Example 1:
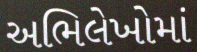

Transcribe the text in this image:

અભિલેખોમાં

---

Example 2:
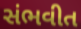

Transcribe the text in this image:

સંભવીત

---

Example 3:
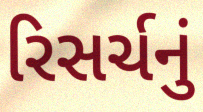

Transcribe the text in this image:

રિસર્ચનું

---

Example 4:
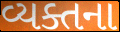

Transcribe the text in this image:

વ્યક્તના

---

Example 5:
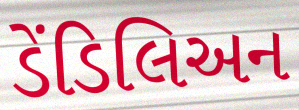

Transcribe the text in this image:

ડેંડિલિઅન